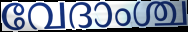
വേദാംശ്ച